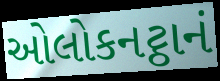
ઓલોકનટ્ઠાનં